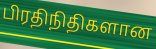
பிரதிநிதிகளான